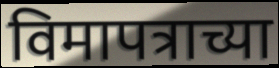
विमापत्राच्या